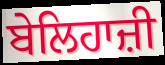
ਬੇਲਿਹਾਜ਼ੀ